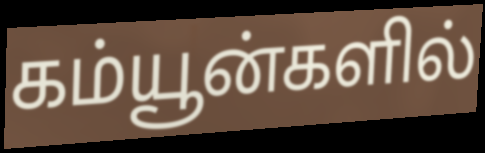
கம்யூன்களில்